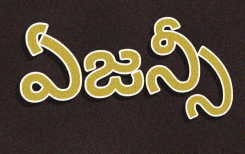
ఏజన్సీ